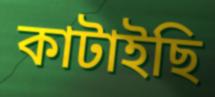
কাটাইছি